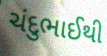
ચંદુભાઈથી